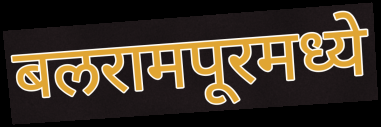
बलरामपूरमध्ये